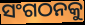
ସଂଗଠନକୁ